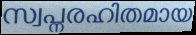
സ്വപ്നരഹിതമായ